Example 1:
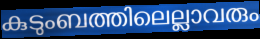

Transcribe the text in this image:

കുടുംബത്തിലെല്ലാവരും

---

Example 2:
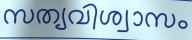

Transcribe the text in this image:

സത്യവിശ്വാസം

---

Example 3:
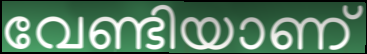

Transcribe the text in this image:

വേണ്ടിയാണ്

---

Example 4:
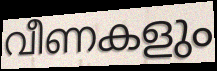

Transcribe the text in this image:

വീണകളും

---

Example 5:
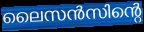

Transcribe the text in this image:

ലൈസൻസിന്റെ